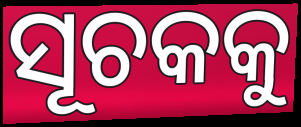
ସୂଚକକୁ